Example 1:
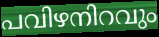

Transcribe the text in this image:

പവിഴനിറവും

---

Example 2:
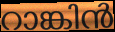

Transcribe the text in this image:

റാങ്കിൻ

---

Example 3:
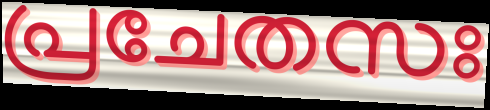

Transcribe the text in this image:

പ്രചേതസഃ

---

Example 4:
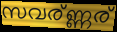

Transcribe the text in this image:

സവര്ണ്ണര്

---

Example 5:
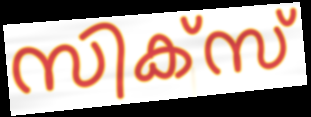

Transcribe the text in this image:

സിക്സ്